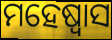
ମହେଷ୍ୱାସ